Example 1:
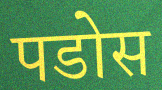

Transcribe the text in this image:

पडोस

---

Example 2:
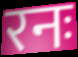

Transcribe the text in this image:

रनः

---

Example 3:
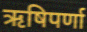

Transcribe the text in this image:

ऋषिपर्णा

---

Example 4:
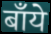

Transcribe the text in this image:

बाँये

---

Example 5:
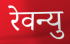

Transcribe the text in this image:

रेवन्यु